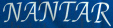
NANTAR